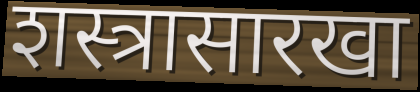
शस्त्रासारखा